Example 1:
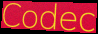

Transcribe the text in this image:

Codec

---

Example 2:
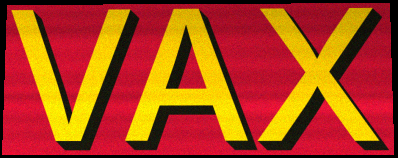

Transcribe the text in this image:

VAX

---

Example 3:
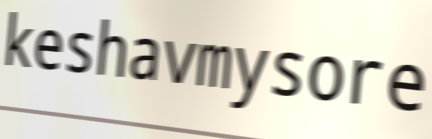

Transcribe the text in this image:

keshavmysore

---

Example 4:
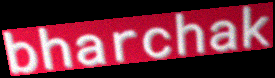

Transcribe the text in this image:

bharchak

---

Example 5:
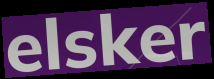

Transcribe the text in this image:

elsker